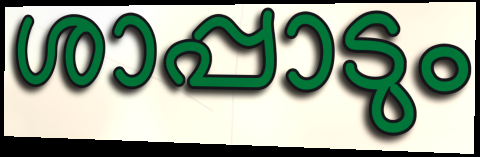
ശാപ്പാടും